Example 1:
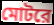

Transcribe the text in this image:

মোটরে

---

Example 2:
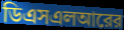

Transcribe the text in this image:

ডিএসএলআরের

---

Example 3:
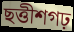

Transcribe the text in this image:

ছত্তীশগঢ়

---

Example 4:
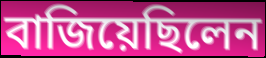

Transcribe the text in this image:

বাজিয়েছিলেন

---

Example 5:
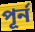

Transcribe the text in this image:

পূর্ন